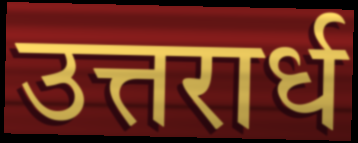
उत्तरार्ध